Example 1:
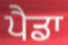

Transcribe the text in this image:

ਪੈਡਾ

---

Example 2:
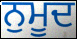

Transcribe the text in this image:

ਨੁਮੂਦ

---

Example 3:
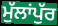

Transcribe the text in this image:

ਮੁੱਲਾਂਪੁੱਰ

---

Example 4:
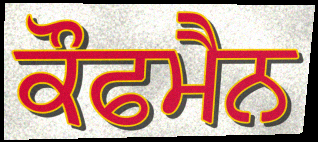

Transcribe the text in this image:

ਕੌਫਮੈਨ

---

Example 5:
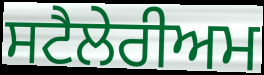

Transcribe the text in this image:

ਸਟੈਲੇਰੀਅਮ